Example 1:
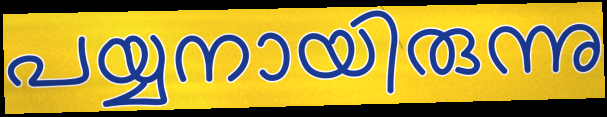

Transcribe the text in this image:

പയ്യനായിരുന്നു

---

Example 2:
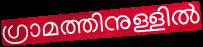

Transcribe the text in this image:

ഗ്രാമത്തിനുള്ളിൽ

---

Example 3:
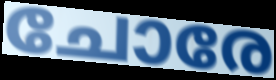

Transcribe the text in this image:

ചോരേ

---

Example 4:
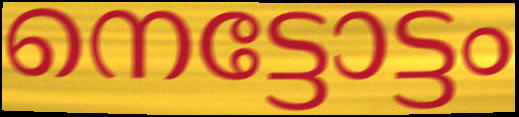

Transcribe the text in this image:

നെട്ടോട്ടം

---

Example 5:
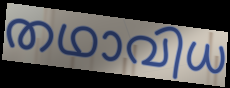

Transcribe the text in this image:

തഥാവിധ